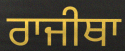
ਰਾਜੀਥਾ